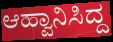
ಆಹ್ವಾನಿಸಿದ್ದ